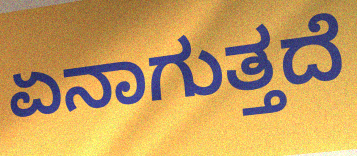
ಏನಾಗುತ್ತದೆ